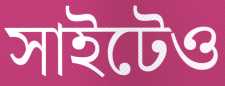
সাইটেও